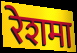
रेशमा